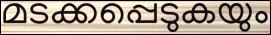
മടക്കപ്പെടുകയും